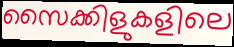
സൈക്കിളുകളിലെ